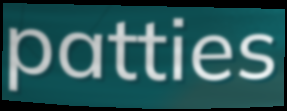
patties